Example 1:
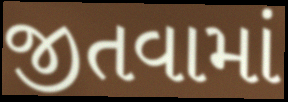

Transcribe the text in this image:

જીતવામાં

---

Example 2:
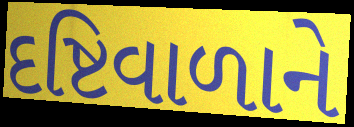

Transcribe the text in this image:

દષ્ટિવાળાને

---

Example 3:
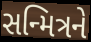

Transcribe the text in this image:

સન્મિત્રને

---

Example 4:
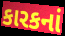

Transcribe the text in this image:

કારકનાં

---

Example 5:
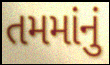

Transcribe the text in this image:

તમમાંનું